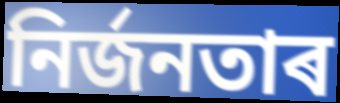
নিৰ্জনতাৰ